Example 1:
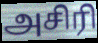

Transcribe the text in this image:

அசிரி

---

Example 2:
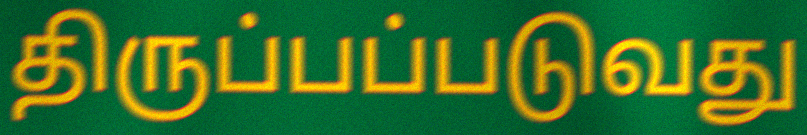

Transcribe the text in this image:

திருப்பப்படுவது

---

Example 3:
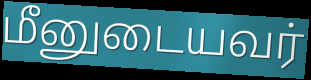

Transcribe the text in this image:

மீனுடையவர்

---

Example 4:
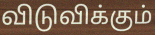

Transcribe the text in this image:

விடுவிக்கும்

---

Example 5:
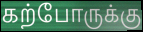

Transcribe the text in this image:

கற்போருக்கு